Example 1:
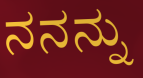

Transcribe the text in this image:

ನನನ್ನು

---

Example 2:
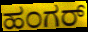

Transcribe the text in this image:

ಹಂಗರ್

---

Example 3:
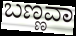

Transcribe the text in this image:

ಬಣ್ಣವಾ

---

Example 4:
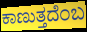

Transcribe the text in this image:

ಕಾಣುತ್ತದೆಂಬ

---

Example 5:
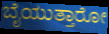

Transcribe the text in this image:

ಬೈಯುತ್ತಾರೋ